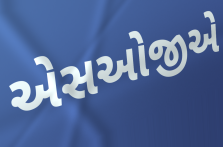
એસઓજીએ